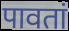
पावतां